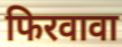
फिरवावा